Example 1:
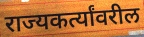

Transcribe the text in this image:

राज्यकर्त्यांवरील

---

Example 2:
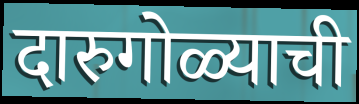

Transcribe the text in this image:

दारुगोळ्याची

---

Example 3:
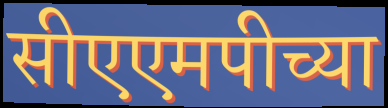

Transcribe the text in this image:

सीएएमपीच्या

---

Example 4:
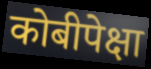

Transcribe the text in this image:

कोबीपेक्षा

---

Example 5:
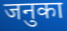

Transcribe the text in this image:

जनुका